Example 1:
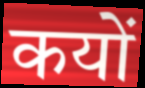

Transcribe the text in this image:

कयों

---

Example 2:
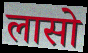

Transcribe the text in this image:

लासो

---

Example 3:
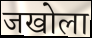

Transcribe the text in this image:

जखोला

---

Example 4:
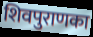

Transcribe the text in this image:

शिवपुराणका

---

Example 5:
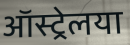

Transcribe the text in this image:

ऑस्ट्रेलया